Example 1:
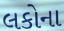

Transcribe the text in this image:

લકોના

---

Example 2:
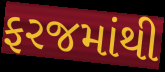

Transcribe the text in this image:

ફરજમાંથી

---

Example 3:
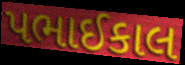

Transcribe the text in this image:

પભાઈકાલ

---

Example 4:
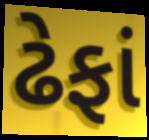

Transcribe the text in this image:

ઢેફાં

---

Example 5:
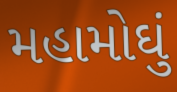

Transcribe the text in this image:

મહામોઘું